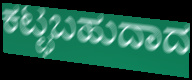
ಕಟ್ಟಬಹುದಾದ